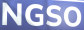
NGSO